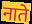
नाते